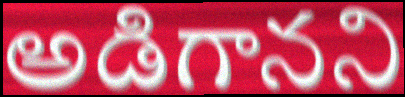
అడిగానని